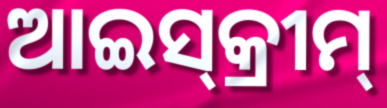
ଆଇସ୍‌କ୍ରୀମ୍